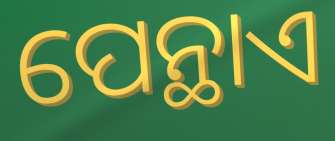
ପେନ୍ଥାଏ